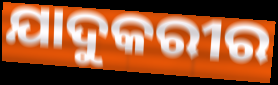
ଯାଦୁକରୀର